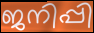
ജനിപ്പി